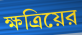
ক্ষত্রিয়ের